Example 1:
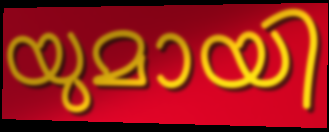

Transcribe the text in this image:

യുമായി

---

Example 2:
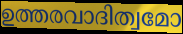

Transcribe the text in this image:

ഉത്തരവാദിത്വമോ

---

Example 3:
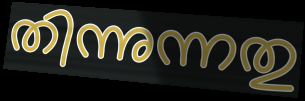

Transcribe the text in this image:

തിന്നുന്നതു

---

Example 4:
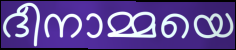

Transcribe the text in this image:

ദീനാമ്മയെ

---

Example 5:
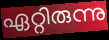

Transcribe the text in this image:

ഏറ്റിരുന്നു